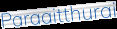
Paraaitthurai